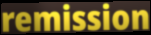
remission